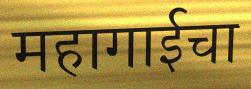
महागाईचा